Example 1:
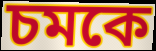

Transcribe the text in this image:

চমকে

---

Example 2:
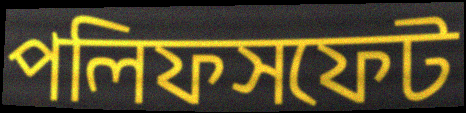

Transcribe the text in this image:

পলিফসফেট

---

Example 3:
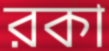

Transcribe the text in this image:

রকা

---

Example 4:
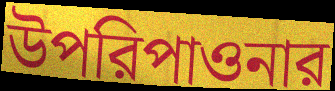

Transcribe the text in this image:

উপরিপাওনার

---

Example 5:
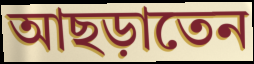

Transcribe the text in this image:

আছড়াতেন